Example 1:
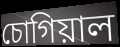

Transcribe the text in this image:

চোগিয়াল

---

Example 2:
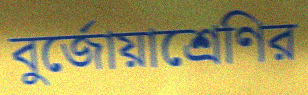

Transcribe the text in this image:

বুর্জোয়াশ্রেণির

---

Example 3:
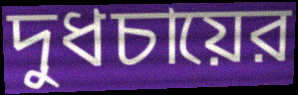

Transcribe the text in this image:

দুধচায়ের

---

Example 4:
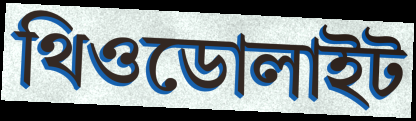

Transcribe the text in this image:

থিওডোলাইট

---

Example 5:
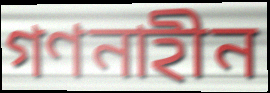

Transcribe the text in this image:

গণনাহীন